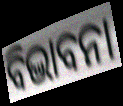
ବିଦ୍ଭାବନା